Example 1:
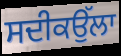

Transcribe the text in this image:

ਸਦੀਕਉੱਲਾ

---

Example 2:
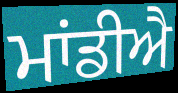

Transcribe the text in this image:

ਮਾਂਡੀਐ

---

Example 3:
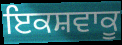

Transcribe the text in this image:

ਇਕਸ਼ਵਾਕੂ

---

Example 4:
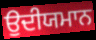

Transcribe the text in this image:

ਉਦੀਯਮਾਨ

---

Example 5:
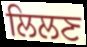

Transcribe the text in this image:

ਲਿਲਣ